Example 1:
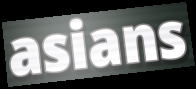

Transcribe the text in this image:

asians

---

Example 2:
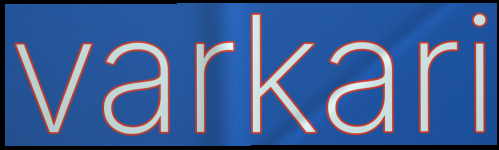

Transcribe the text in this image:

varkari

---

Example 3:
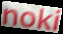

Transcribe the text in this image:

noki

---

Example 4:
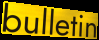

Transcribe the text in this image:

bulletin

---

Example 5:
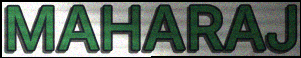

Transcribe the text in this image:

MAHARAJ